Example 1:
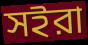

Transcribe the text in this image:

সইরা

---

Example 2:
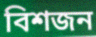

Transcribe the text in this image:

বিশজন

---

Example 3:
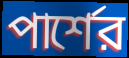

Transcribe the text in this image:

পার্শের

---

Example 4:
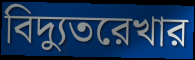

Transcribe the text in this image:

বিদ্যুতরেখার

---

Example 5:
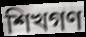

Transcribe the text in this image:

শিখগণ